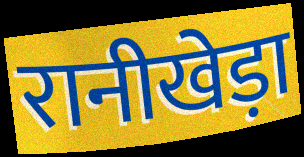
रानीखेड़ा